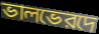
ভালভেরদে